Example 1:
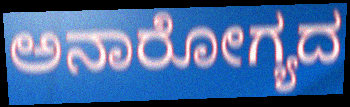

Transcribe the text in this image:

ಅನಾರೋಗ್ಯದ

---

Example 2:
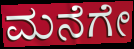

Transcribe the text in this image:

ಮನೆಗೇ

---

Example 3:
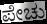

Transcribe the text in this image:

ಪೇಚು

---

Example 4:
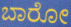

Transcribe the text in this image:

ಬಾರೋ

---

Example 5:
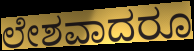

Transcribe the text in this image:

ಲೇಶವಾದರೂ